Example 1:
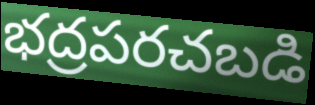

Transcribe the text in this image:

భద్రపరచబడి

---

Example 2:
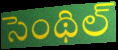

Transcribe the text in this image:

సెంథిల్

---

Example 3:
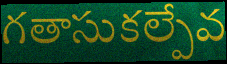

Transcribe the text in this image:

గతాసుకల్పేవ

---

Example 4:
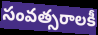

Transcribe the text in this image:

సంవత్సరాలకీ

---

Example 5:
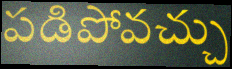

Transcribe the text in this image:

పడిపోవచ్చు